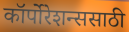
कॉर्पोरेशन्ससाठी